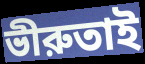
ভীরুতাই